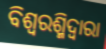
ବିଶ୍ୱରଶ୍ମିଦ୍ୱାରା